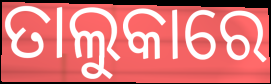
ତାଲୁକାରେ